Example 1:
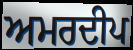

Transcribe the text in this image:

ਅਮਰਦੀਪ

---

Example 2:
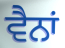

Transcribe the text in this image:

ਵੈਨਾਂ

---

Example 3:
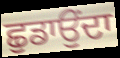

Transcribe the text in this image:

ਛੁਡਾਉਂਦਾ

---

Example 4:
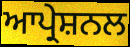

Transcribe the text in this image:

ਆਪ੍ਰੇਸ਼ਨਲ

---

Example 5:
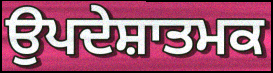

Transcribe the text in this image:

ਉਪਦੇਸ਼ਾਤਮਕ